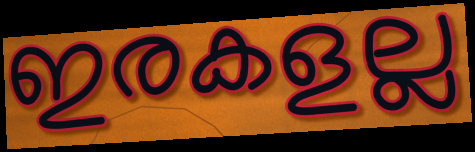
ഇരകളല്ല